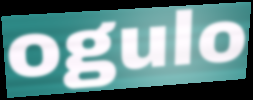
ogulo